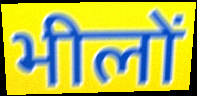
भीलों